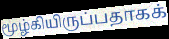
மூழ்கியிருப்பதாகக்